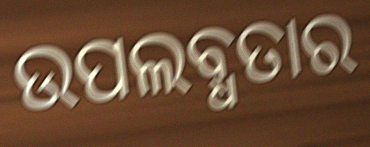
ଉପଲବ୍ଧତାର